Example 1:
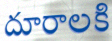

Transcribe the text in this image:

దూరాలకి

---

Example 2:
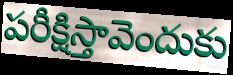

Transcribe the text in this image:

పరీక్షిస్తావెందుకు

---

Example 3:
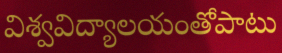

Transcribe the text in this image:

విశ్వవిద్యాలయంతోపాటు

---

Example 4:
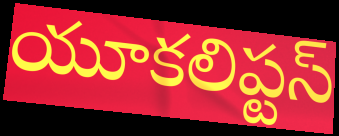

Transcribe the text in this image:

యూకలిప్టస్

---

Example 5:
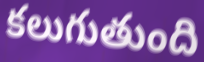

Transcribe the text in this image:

కలుగుతుంది